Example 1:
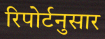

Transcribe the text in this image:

रिपोर्टनुसार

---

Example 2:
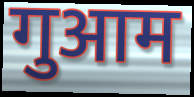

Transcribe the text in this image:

गुआम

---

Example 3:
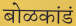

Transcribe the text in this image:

बोळकांडं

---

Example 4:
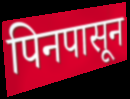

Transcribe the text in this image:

पिनपासून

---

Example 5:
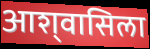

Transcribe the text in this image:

आश्वासिला